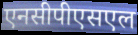
एनसीपीएसएल